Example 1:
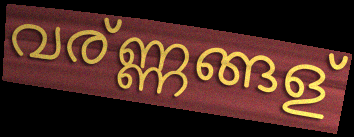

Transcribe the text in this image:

വര്ണ്ണങ്ങള്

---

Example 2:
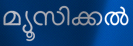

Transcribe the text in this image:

മ്യൂസിക്കൽ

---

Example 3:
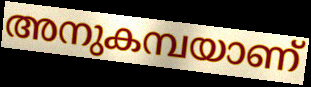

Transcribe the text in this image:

അനുകമ്പയാണ്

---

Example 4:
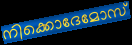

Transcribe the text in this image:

നിക്കൊദേമോസ്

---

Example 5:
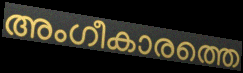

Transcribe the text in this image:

അംഗീകാരത്തെ